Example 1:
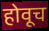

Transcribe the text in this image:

होवूच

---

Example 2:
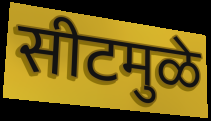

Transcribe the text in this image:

सीटमुळे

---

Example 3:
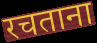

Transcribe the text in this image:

रचताना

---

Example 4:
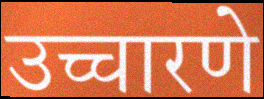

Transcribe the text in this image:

उच्चारणे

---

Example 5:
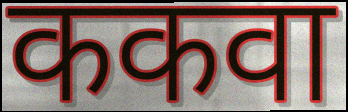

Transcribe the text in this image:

ककवा